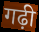
गढ़ी